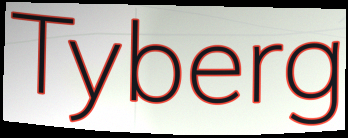
Tyberg